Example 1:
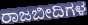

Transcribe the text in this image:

ರಾಜಬೀದಿಗಳ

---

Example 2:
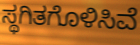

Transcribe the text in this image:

ಸ್ಥಗಿತಗೊಳಿಸಿವೆ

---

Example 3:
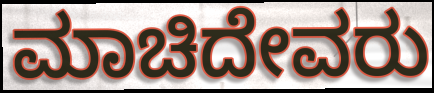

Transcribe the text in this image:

ಮಾಚಿದೇವರು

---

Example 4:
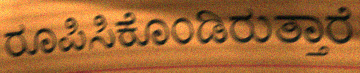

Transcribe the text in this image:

ರೂಪಿಸಿಕೊಂಡಿರುತ್ತಾರೆ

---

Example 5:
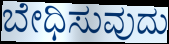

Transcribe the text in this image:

ಬೇಧಿಸುವುದು